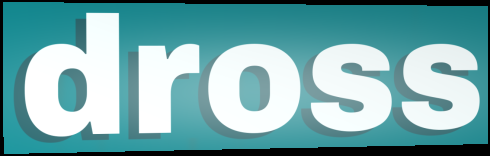
dross